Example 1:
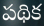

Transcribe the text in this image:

పథిక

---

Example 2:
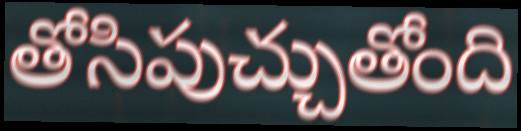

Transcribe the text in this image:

తోసిపుచ్చుతోంది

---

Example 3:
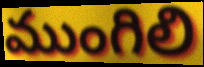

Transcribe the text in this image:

ముంగిలి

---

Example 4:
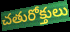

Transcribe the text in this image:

చతురోక్తులు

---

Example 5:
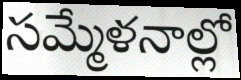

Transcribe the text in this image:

సమ్మేళనాల్లో